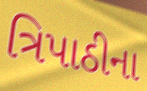
ત્રિપાઠીના